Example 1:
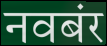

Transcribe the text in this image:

नवबंर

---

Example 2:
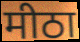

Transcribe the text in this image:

मीठा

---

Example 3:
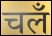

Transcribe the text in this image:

चलँ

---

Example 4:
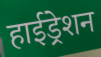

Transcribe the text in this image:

हाईड्रेशन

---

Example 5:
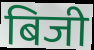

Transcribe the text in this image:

बिजी